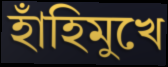
হাঁহিমুখে